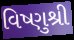
વિષ્ણુશ્રી